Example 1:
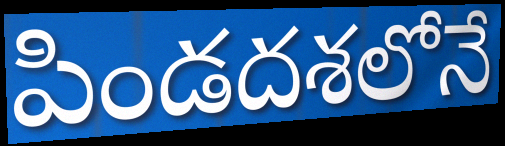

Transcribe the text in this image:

పిండదశలోనే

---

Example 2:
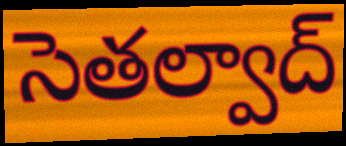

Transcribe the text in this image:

సెతల్వాద్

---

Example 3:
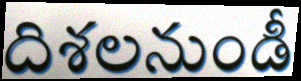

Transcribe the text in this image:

దిశలనుండీ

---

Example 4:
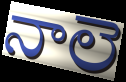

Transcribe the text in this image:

నాలె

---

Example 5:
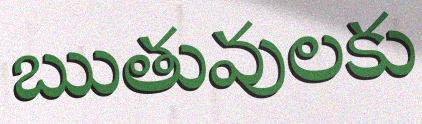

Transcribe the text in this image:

ఋతువులకు